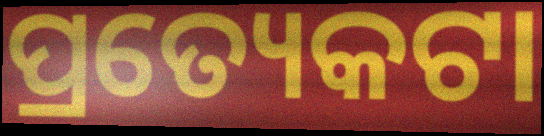
ପ୍ରତ୍ୟେକଟା